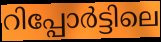
റിപ്പോർട്ടിലെ